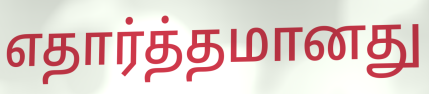
எதார்த்தமானது